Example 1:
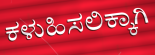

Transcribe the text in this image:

ಕಳುಹಿಸಲಿಕ್ಕಾಗಿ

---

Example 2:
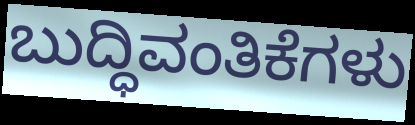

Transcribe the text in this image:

ಬುದ್ಧಿವಂತಿಕೆಗಳು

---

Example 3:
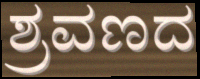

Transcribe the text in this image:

ಶ್ರವಣದ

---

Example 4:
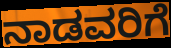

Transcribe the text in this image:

ನಾಡವರಿಗೆ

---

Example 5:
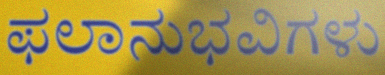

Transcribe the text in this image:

ಫಲಾನುಭವಿಗಳು